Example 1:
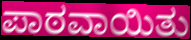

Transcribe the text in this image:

ಪಾಠವಾಯಿತು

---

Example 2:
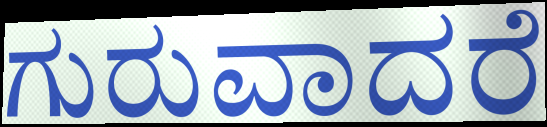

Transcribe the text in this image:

ಗುರುವಾದರೆ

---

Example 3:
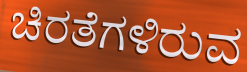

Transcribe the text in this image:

ಚಿರತೆಗಳಿರುವ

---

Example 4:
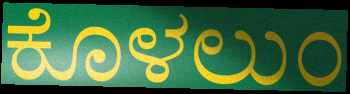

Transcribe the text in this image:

ಕೊಳಲುಂ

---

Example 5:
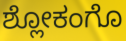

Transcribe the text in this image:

ಶ್ಲೋಕಂಗೊ